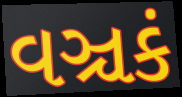
વઞ્ચકં